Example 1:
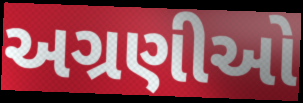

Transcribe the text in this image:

અગ્રણીઓ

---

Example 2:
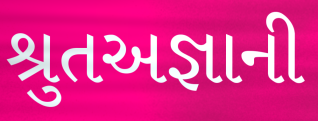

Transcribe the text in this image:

શ્રુતઅજ્ઞાની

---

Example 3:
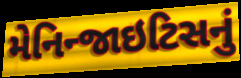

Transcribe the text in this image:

મેનિન્જાઇટિસનું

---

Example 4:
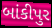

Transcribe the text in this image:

બાંકીપુર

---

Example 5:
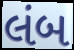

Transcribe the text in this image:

લંબ